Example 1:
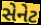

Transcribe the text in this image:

સેનેટ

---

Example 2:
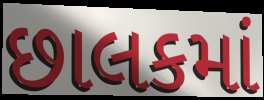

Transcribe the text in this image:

છાલકમાં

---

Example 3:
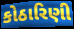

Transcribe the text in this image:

કોઠારિણી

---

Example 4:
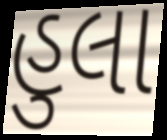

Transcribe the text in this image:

હુલા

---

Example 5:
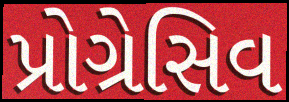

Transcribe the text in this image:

પ્રોગ્રેસિવ